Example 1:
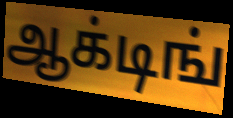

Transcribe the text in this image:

ஆக்டிங்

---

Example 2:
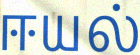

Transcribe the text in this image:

ஈயல்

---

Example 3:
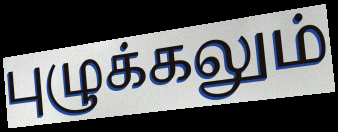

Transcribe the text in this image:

புழுக்கலும்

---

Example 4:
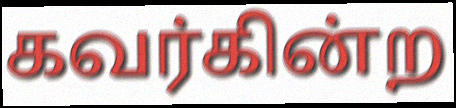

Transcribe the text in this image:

கவர்கின்ற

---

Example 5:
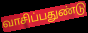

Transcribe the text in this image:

வாசிப்பதுண்டு